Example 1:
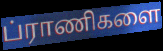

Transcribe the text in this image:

ப்ராணிகளை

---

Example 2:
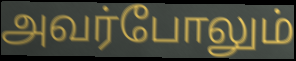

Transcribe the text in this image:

அவர்போலும்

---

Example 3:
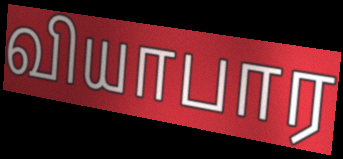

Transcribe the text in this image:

வியாபார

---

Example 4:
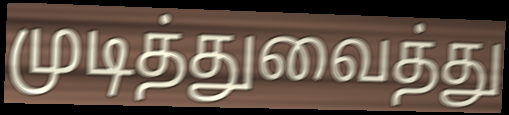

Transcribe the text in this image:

முடித்துவைத்து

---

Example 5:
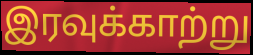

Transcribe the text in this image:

இரவுக்காற்று